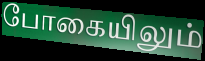
போகையிலும்